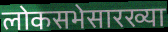
लोकसभेसारख्या